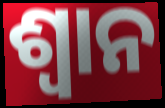
ଶ୍ୱାନ